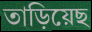
তাড়িয়েছ